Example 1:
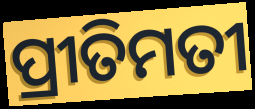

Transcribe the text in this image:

ପ୍ରୀତିମତୀ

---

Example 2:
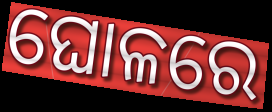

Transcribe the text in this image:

ଘୋଳରେ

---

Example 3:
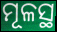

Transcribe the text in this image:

ମୂଳସ୍ଥ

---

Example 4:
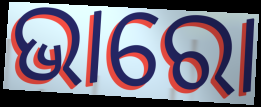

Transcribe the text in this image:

ଭାରୋ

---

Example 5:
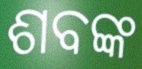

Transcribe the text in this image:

ଶବଙ୍କ